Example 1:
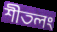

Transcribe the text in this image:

শীতলং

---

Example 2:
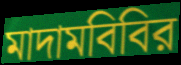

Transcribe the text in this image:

মাদামবিবির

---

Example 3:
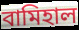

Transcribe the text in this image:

বামিহাল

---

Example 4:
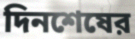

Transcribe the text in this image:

দিনশেষের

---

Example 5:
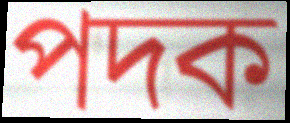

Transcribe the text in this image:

পদক